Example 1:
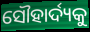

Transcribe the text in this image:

ସୌହାର୍ଦ୍ୟକୁ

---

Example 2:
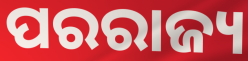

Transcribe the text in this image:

ପରରାଜ୍ୟ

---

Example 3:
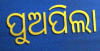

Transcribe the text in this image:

ପୁଅପିଲା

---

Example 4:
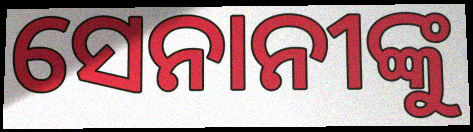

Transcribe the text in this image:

ସେନାନୀଙ୍କୁ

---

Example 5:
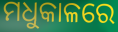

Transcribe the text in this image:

ମଧୁକାଳରେ